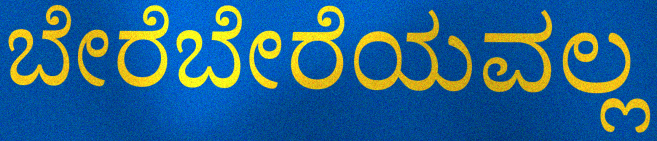
ಬೇರೆಬೇರೆಯವಲ್ಲ